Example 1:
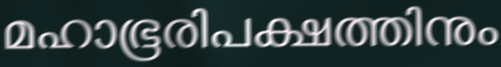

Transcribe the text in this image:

മഹാഭൂരിപക്ഷത്തിനും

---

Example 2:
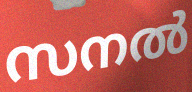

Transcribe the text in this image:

സനൽ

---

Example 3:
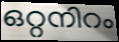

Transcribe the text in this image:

ഒറ്റനിറം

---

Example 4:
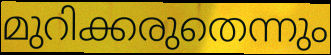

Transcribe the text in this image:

മുറിക്കരുതെന്നും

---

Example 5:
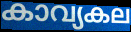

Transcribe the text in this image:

കാവ്യകല